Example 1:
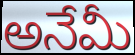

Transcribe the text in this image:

అనేమీ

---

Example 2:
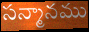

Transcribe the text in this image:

సన్మానము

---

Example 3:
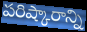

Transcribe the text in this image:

పరిష్కారాన్ని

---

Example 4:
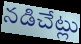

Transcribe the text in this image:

నడిచేట్లు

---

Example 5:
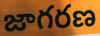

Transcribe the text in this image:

జాగరణ